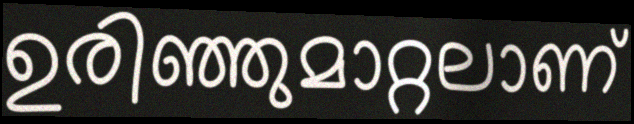
ഉരിഞ്ഞുമാറ്റലാണ്